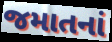
જમાતનાં